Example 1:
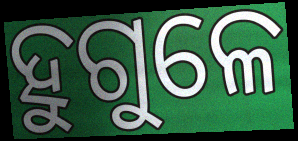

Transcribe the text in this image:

ହୁଗୁଳେ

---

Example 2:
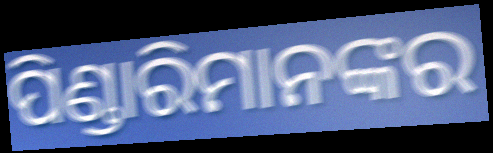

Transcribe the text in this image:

ପିଣ୍ଡାରିମାନଙ୍କର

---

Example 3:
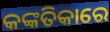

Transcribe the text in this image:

କଙ୍କତିକାରେ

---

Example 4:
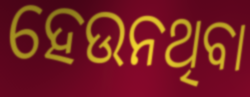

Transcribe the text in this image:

ହେଉନଥିବା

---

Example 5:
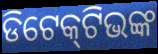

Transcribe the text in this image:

ଡିଟେକ୍‌ଟିଭଙ୍କ